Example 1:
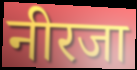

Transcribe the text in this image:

नीरजा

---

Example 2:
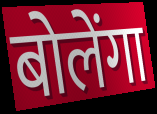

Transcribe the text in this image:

बोलेंगा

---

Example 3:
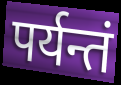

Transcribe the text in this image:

पर्यन्तं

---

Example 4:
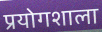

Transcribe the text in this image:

प्रयोगशाला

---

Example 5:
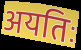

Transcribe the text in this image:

अयतिः